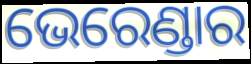
ଭେରେଣ୍ଡାର